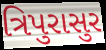
ત્રિપુરાસુર